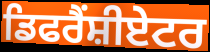
ਡਿਫਰੈਂਸ਼ੀਏਟਰ